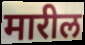
मारील